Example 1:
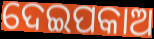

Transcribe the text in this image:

ଦେଇପକାଅ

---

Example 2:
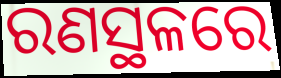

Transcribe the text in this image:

ରଣସ୍ଥଳରେ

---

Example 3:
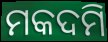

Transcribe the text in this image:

ମକଦମି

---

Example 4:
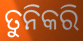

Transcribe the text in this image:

ତୁନିକରି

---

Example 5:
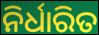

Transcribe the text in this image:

ନିର୍ଧାରିତ